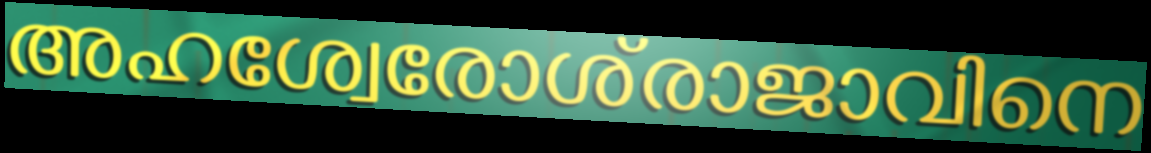
അഹശ്വേരോശ്‌രാജാവിനെ